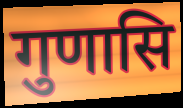
गुणासि